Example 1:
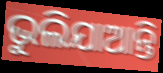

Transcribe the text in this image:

ଭୁଲିଯାଆନ୍ତି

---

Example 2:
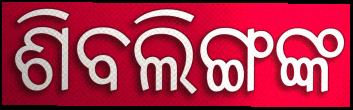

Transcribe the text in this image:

ଶିବଲିଙ୍ଗଙ୍କ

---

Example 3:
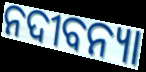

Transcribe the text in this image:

ନଦୀବନ୍ୟା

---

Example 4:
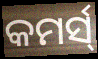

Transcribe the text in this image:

କମର୍ସ୍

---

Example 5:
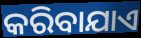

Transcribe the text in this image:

କରିବାଯାଏ